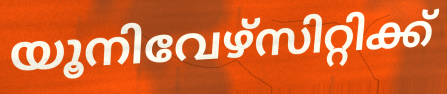
യൂനിവേഴ്സിറ്റിക്ക്